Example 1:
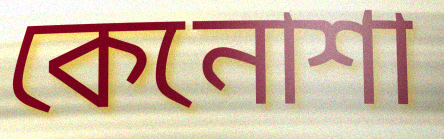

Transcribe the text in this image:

কেনোশা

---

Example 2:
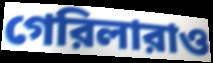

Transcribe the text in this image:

গেরিলারাও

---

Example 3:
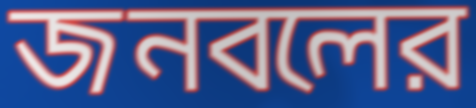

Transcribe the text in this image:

জনবলের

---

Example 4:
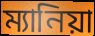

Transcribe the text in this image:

ম্যানিয়া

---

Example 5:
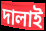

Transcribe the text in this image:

দালাই